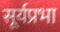
सूर्यप्रभा